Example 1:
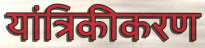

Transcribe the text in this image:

यांत्रिकीकरण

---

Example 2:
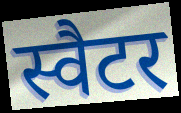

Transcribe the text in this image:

स्वैटर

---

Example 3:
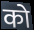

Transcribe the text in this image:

को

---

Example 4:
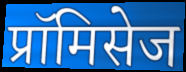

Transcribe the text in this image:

प्रॉमिसेज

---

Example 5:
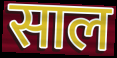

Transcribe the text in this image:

साल